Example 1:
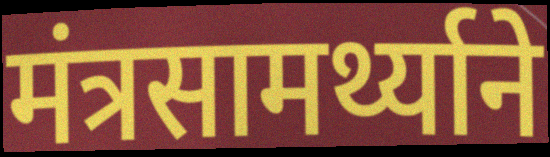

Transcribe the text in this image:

मंत्रसामर्थ्याने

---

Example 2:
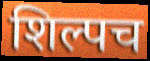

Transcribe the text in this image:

शिल्पच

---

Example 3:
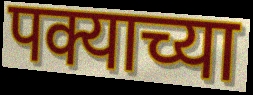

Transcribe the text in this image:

पक्याच्या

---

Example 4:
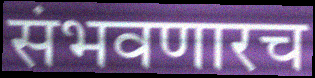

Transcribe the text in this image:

संभवणारच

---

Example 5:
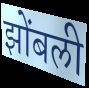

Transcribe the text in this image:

झोंबली